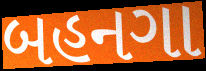
બહનગા